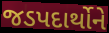
જડપદાર્થોને